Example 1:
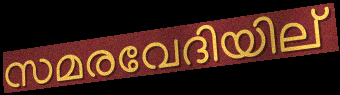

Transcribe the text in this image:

സമരവേദിയില്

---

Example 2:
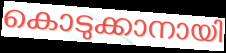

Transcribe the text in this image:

കൊടുക്കാനായി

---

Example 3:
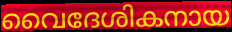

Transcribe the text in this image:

വൈദേശികനായ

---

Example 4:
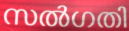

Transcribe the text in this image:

സൽഗതി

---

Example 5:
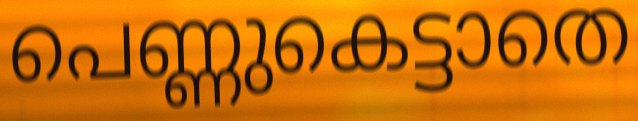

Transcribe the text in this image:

പെണ്ണുകെട്ടാതെ